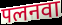
पलनवा